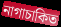
নাগাচাকিত